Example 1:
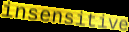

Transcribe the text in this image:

insensitive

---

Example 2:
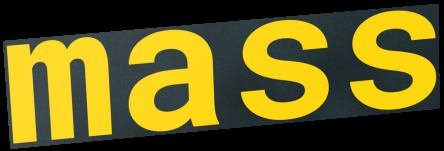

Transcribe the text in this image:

mass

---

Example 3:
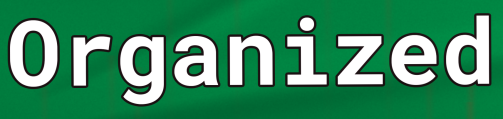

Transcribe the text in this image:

Organized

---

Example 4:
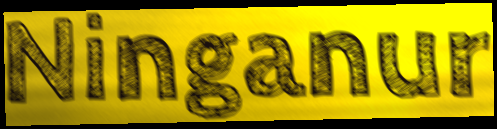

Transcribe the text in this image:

Ninganur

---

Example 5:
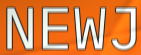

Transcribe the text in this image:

NEWJ